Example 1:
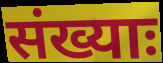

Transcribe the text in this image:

संख्याः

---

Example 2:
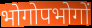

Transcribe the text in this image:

भोगोपभोगों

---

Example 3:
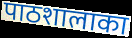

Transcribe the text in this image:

पाठशालाका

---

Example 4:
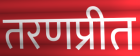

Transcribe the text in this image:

तरणप्रीत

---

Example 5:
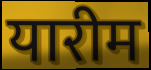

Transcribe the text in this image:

यारीम